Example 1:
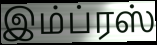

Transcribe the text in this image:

இம்ப்ரஸ்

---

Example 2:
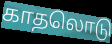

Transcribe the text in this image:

காதலொடு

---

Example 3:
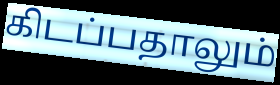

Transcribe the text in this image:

கிடப்பதாலும்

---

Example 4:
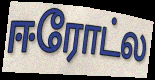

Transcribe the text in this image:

ஈரோட்ல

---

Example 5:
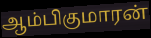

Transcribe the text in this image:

ஆம்பிகுமாரன்